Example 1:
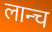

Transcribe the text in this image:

लान्‍च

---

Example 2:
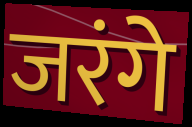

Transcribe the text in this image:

जरंगे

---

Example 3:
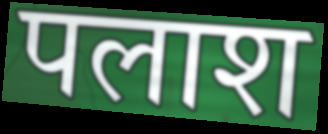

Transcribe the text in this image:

पलाश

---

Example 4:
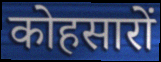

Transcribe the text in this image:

कोहसारों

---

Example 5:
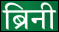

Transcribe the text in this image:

ब्रिनी